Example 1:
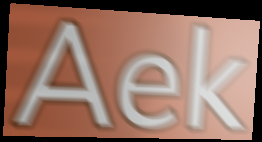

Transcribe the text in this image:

Aek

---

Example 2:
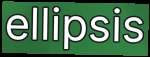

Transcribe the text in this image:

ellipsis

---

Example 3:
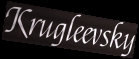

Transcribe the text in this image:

Krugleevsky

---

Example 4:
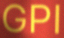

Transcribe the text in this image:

GPI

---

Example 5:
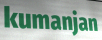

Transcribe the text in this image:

kumanjan